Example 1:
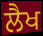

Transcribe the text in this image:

ਲੈਖ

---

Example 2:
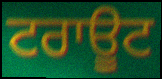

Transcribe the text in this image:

ਟਰਾਊਟ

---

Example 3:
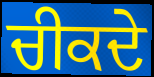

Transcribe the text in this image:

ਚੀਕਦੇ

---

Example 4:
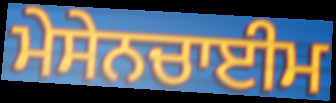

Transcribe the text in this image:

ਮੇਸੇਨਚਾਈਮ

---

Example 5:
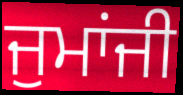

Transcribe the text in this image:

ਜੁਮਾਂਜੀ